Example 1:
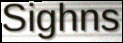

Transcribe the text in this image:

Sighns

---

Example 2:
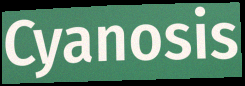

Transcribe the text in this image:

Cyanosis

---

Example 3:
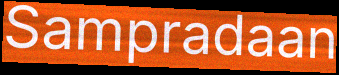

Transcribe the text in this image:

Sampradaan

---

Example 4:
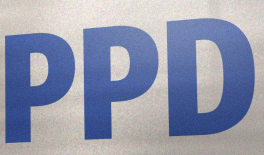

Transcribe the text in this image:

PPD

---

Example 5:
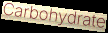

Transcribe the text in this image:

Carbohydrate